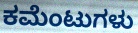
ಕಮೆಂಟುಗಳು